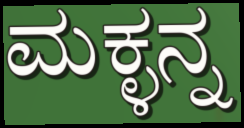
ಮಕ್ಳನ್ನ